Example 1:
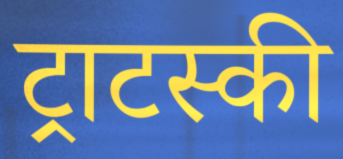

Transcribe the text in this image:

ट्राटस्की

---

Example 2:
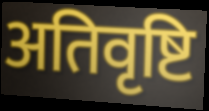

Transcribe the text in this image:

अतिवृष्टि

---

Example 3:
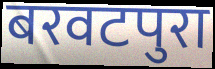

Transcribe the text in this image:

बरवटपुरा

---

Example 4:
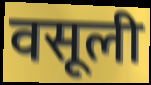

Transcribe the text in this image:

वसूली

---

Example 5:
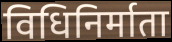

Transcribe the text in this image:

विधिनिर्माता